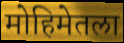
मोहिमेतला